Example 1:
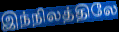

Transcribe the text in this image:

இந்நிலத்திலே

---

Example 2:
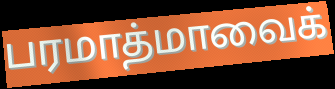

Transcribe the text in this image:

பரமாத்மாவைக்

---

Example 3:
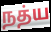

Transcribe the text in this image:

நத்ய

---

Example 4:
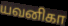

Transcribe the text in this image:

யவனிகா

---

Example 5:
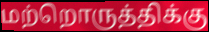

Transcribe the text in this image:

மற்றொருத்திக்கு